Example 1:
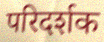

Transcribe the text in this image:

परिदर्शक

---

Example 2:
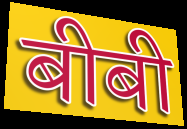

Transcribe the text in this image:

बीबी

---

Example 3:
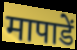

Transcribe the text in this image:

मापाडें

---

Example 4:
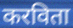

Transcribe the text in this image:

करविता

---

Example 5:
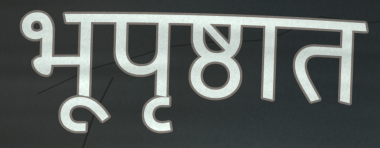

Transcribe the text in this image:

भूपृष्ठात